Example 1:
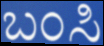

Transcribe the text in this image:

ಬಂಸಿ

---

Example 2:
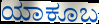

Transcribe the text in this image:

ಯಾಕೂಬ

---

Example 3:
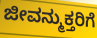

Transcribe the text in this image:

ಜೀವನ್ಮುಕ್ತರಿಗೆ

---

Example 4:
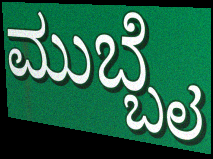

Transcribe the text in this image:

ಮುಬ್ಬೈ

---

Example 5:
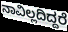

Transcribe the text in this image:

ನಾವಿಲ್ಲದಿದ್ದರೆ